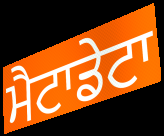
ਮੈਟਾਡੇਟਾ